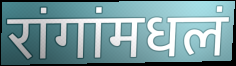
रांगांमधलं